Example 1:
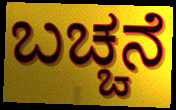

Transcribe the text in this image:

ಬಚ್ಚನೆ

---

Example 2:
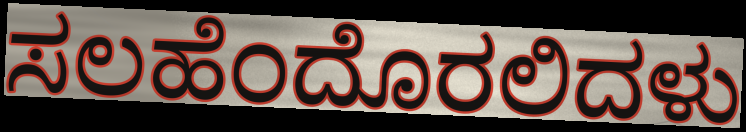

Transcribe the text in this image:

ಸಲಹೆಂದೊರಲಿದಳು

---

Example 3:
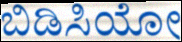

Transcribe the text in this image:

ಬಿಡಿಸಿಯೋ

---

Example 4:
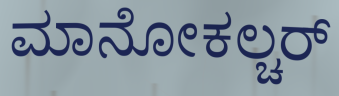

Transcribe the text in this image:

ಮಾನೋಕಲ್ಚರ್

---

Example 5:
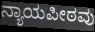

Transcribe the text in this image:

ನ್ಯಾಯಪೀಠವು